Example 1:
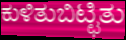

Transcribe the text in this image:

ಕುಳಿತುಬಿಟ್ಟಿತು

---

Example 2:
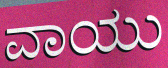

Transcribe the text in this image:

ವಾಯು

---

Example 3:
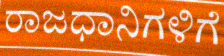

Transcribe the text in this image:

ರಾಜಧಾನಿಗಳಿಗೆ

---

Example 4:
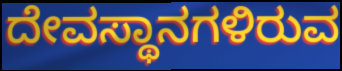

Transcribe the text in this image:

ದೇವಸ್ಥಾನಗಳಿರುವ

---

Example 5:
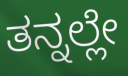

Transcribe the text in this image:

ತನ್ನಲ್ಲೇ